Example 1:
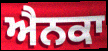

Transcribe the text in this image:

ਐਨਕਾ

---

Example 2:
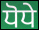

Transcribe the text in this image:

ਧੋਧੇ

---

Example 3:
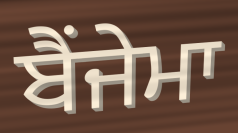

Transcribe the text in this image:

ਬੈਂਜੇਮਾ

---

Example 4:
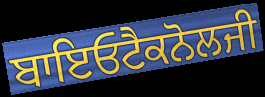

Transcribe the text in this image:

ਬਾਇਓਟੈਕਨੋਲਜੀ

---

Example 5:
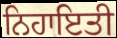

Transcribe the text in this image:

ਨਿਹਾਇਤੀ